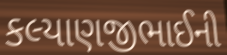
કલ્યાણજીભાઈની